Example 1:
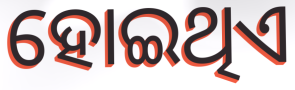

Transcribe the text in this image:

ହୋଇଥିଏ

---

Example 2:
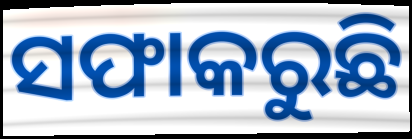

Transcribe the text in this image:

ସଫାକରୁଛି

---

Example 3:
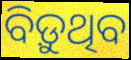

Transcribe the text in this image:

ବିଡ଼ୁଥିବ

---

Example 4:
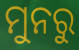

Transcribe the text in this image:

ମୁନରୁ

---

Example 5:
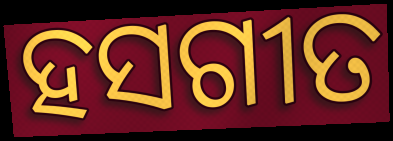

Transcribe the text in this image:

ହସଗୀତ